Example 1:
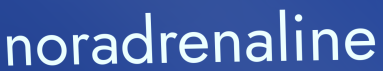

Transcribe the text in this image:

noradrenaline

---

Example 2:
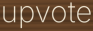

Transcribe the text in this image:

upvote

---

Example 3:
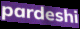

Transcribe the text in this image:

pardeshi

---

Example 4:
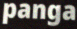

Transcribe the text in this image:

panga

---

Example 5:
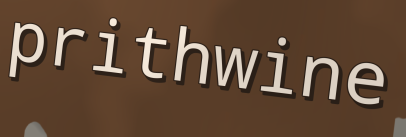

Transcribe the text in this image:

prithwine